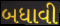
બધાવી